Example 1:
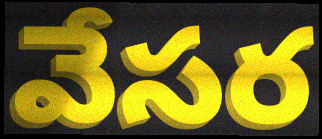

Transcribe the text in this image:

వేసర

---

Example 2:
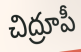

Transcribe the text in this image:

చిద్రూపీ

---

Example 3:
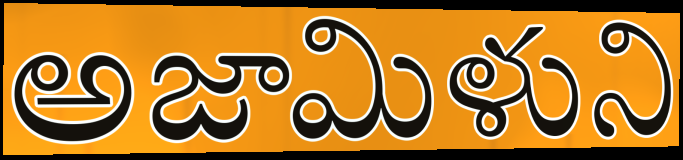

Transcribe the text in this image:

అజామిళుని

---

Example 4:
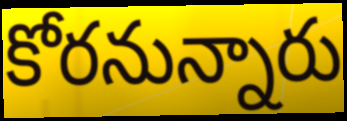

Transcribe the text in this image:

కోరనున్నారు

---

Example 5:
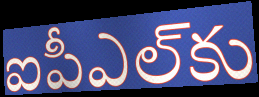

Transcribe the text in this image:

ఐపీఎల్‌కు